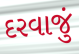
દરવાજું